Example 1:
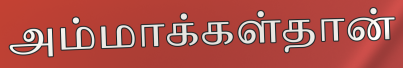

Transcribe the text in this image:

அம்மாக்கள்தான்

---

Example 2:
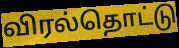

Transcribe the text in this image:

விரல்தொட்டு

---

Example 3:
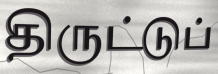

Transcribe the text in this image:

திருட்டுப்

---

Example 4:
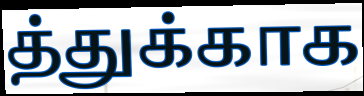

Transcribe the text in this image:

த்துக்காக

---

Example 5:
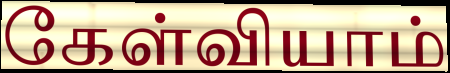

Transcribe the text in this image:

கேள்வியாம்